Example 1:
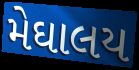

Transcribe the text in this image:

મેઘાલય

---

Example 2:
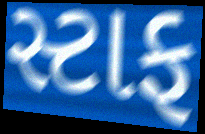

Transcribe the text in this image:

સ્ટાફ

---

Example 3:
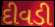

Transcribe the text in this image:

દીવડી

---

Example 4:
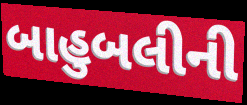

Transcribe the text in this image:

બાહુબલીની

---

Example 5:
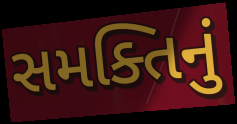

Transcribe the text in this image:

સમક્તિનું